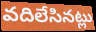
వదిలేసినట్లు